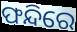
ଫନ୍ଦିରେ